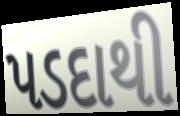
પડદાથી